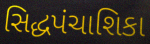
સિદ્ધપંચાશિકા